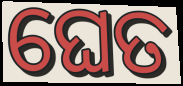
ଘେତ